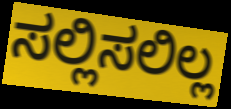
ಸಲ್ಲಿಸಲಿಲ್ಲ